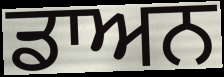
ਡਾਅਨ